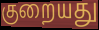
குறையது